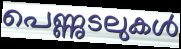
പെണ്ണുടലുകൾ